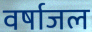
वर्षाजल